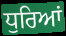
ਧੁਰਿਆਂ